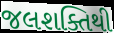
જલશક્તિથી